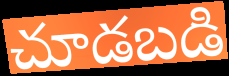
చూడబడి